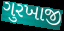
ગુરખાજી